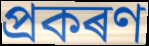
প্ৰকৰণ